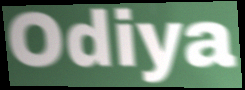
Odiya